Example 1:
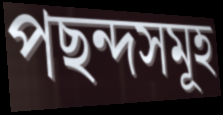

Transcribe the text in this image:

পছন্দসমূহ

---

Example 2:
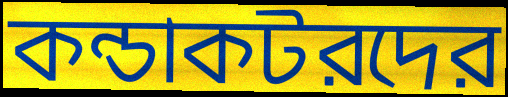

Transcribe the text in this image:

কন্ডাকটরদের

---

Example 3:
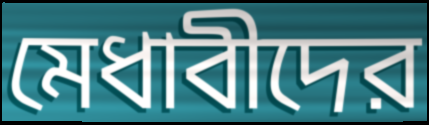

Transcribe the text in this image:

মেধাবীদের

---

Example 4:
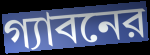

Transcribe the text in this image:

গ্যাবনের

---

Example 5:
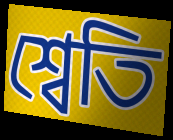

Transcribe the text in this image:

শ্বেতি